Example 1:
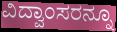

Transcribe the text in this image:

ವಿದ್ವಾಂಸರನ್ನೂ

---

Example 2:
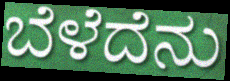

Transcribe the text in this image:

ಬೆಳೆದೆನು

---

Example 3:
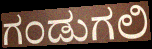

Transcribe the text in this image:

ಗಂಡುಗಲಿ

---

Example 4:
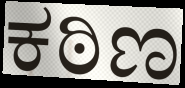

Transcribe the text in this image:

ಕಠಿಣ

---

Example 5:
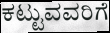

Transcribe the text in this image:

ಕಟ್ಟುವವರಿಗೆ